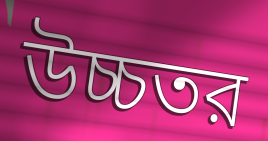
উচ্চতর